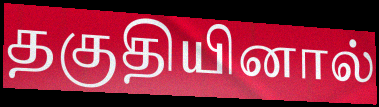
தகுதியினால்